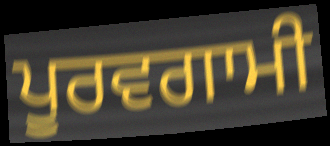
ਪੂਰਵਗਾਮੀ